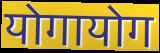
योगायोग